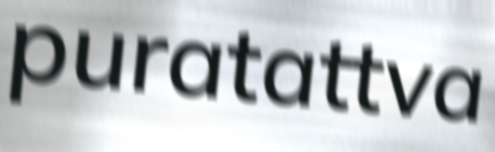
puratattva